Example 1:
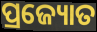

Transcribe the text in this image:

ପ୍ରଜ୍ୟୋତ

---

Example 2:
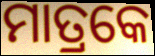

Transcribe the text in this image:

ମାତ୍ରକେ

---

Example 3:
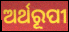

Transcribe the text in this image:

ଅର୍ଥରୂପୀ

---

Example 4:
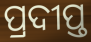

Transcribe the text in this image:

ପ୍ରଦୀପ୍ତ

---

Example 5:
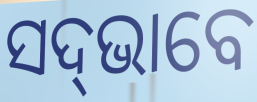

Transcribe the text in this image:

ସଦ୍‌ଭାବେ